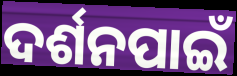
ଦର୍ଶନପାଇଁ